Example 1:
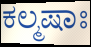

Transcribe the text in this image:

ಕಲ್ಮಷಾಃ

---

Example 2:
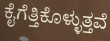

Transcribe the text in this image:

ಕೈಗೆತ್ತಿಕೊಳ್ಳುತ್ತವೆ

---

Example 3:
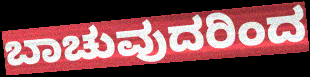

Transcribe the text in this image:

ಬಾಚುವುದರಿಂದ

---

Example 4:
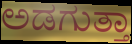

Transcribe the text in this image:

ಅಡಗುತ್ತಾ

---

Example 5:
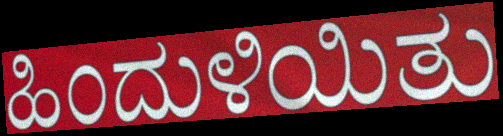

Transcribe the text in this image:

ಹಿಂದುಳಿಯಿತು